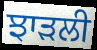
ਝਾੜਲੀ